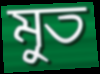
মুত